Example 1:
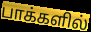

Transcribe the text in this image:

பாக்களில்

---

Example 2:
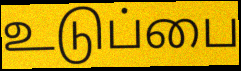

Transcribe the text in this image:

உடுப்பை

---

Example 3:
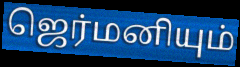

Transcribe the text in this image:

ஜெர்மனியும்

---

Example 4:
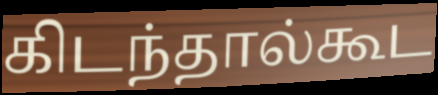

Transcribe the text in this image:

கிடந்தால்கூட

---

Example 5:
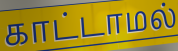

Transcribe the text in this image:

காட்டாமல்